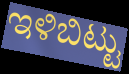
ಇಳಿಬಿಟ್ಟು